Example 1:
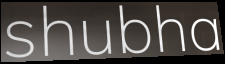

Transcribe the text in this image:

shubha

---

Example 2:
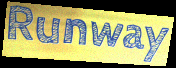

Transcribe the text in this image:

Runway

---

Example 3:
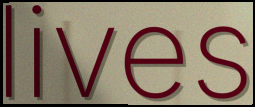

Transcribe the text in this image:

lives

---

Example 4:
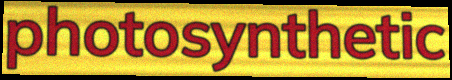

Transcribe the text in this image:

photosynthetic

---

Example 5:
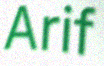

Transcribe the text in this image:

Arif